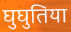
घुघुतिया